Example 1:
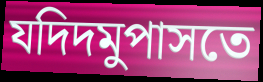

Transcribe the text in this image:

যদিদমুপাসতে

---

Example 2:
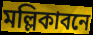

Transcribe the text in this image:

মল্লিকাবনে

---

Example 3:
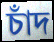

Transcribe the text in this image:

চাঁদ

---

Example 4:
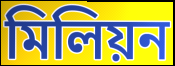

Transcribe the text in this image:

মিলিয়ন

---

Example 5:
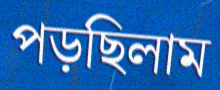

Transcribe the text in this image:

পড়ছিলাম